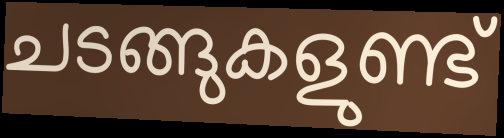
ചടങ്ങുകളുണ്ട്